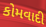
કોમવાદી